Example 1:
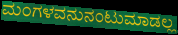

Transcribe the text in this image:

ಮಂಗಳವನುನಂಟುಮಾಡಲ್ಲ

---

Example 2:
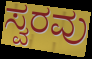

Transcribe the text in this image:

ಸ್ವರವು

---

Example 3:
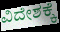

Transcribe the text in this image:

ವಿದೇಶಕ್ಕೆ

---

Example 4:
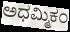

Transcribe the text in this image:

ಅಧಮ್ಮಿಕಂ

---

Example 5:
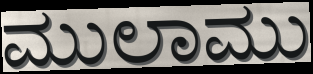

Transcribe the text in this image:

ಮುಲಾಮು